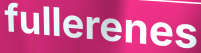
fullerenes